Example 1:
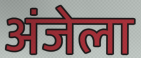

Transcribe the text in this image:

अंजेला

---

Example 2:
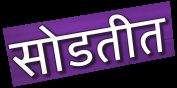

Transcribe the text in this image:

सोडतीत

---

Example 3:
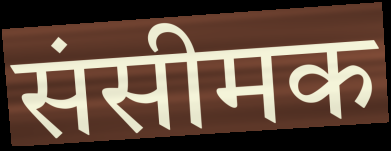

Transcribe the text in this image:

संसीमक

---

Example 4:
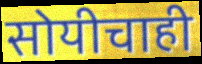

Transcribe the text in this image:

सोयीचाही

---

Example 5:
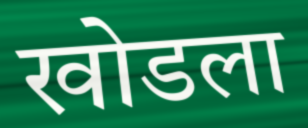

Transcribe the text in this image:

खोडला